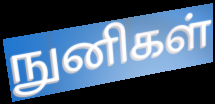
நுனிகள்